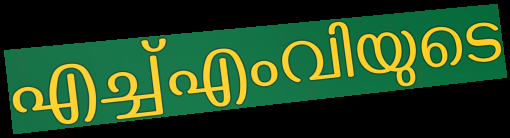
എച്ച്എംവിയുടെ